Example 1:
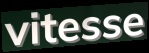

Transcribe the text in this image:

vitesse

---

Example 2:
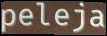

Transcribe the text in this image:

peleja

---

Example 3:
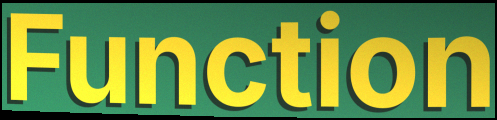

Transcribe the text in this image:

Function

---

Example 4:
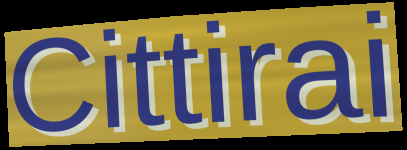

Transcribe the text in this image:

Cittirai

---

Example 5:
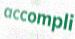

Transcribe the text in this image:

accompli